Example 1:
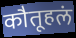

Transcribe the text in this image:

कौतूहलं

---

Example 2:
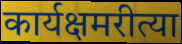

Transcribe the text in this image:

कार्यक्षमरीत्या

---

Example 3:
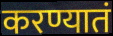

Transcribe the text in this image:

करण्यातं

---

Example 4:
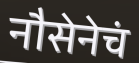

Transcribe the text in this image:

नौसेनेचं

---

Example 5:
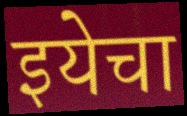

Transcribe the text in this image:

इयेचा